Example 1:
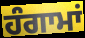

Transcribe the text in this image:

ਹੰਗਾਮਾਂ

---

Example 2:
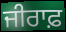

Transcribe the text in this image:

ਜੀਰਾਫ਼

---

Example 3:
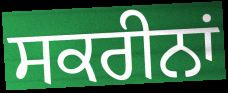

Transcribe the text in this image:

ਸਕਰੀਨਾਂ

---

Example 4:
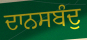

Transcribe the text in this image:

ਦਾਨਸਬੰਦੁ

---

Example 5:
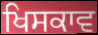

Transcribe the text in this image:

ਖਿਸਕਾਵ